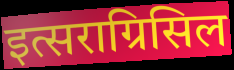
इत्सराग्रिसिल